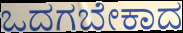
ಒದಗಬೇಕಾದ